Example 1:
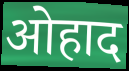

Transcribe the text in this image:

ओहाद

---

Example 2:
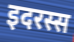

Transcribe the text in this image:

इदरस्स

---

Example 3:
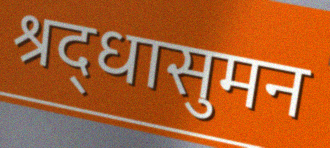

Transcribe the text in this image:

श्रद्धासुमन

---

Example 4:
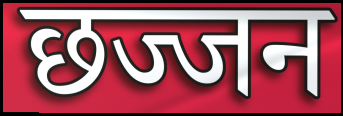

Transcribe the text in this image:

छज्जन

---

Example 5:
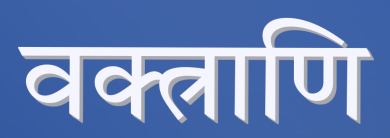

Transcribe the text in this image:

वक्त्राणि